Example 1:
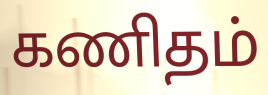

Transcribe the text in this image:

கணிதம்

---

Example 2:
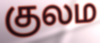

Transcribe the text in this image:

குலம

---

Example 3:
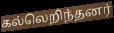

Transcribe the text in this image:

கல்லெறிந்தனர்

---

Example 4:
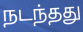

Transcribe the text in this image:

நடந்தது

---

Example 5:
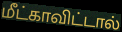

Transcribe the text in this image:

மீட்காவிட்டால்